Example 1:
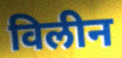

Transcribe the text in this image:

विलीन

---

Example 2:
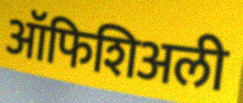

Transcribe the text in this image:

ऑफिशिअली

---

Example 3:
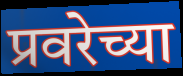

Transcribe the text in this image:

प्रवरेच्या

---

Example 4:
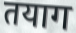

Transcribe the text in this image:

तयाग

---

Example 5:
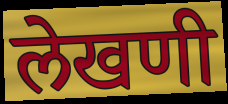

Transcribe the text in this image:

लेखणी